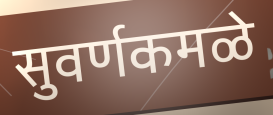
सुवर्णकमळे